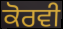
ਕੋਰਵੀ